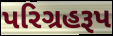
પરિગ્રહરૂપ